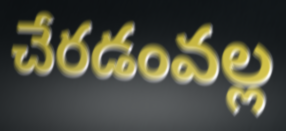
చేరడంవల్ల